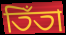
তিঁতা